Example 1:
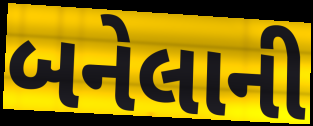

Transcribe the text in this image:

બનેલાની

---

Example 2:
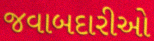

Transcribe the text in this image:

જવાબદારીઓ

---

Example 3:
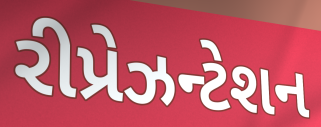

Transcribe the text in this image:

રીપ્રેઝન્ટેશન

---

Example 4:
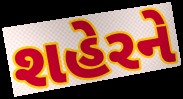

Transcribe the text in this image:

શહેરને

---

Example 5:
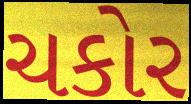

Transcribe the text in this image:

ચકોર